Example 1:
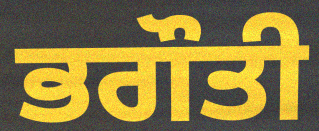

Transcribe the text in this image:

ਭਗੌਤੀ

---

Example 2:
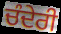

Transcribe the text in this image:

ਚੰਦੇਰੀ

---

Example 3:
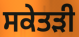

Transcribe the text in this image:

ਸਕੇਤੜੀ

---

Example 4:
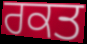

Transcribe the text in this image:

ਰਕਤ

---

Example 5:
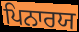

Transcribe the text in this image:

ਪਿਨਾਰਯ